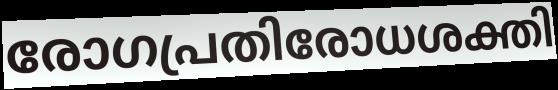
രോഗപ്രതിരോധശക്തി